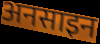
अनसाइन